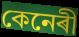
কেনেৰী